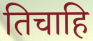
तिचाहि